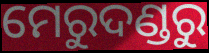
ମେରୁଦଣ୍ଡରୁ